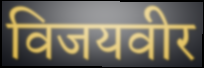
विजयवीर